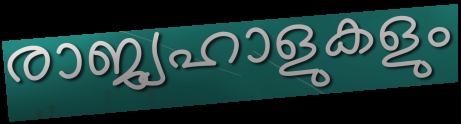
രാജ്യഹാളുകളും